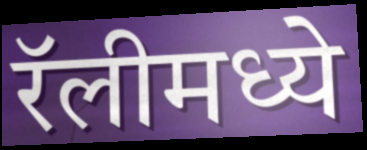
रॅलीमध्ये